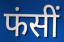
फंसीं